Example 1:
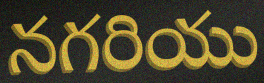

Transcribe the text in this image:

నగరియు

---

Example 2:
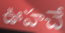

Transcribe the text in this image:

ఊహచే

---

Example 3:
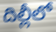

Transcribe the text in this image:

దిల్లీలో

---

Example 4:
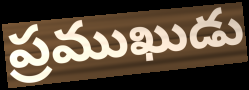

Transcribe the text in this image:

ప్రముఖుడు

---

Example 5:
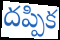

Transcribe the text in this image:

దప్పిక